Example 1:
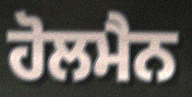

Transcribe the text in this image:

ਹੋਲਮੈਨ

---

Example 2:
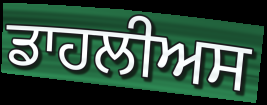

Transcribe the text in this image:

ਡਾਹਲੀਅਸ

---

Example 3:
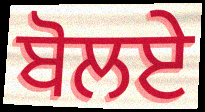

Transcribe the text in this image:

ਬੋਲਏ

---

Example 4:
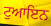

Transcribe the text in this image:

ਟੁਆਇਨ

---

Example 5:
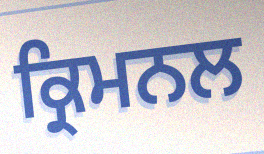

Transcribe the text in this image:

ਕ੍ਰਿਮਨਲ